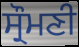
ਸ੍ਰੌਮਣੀ